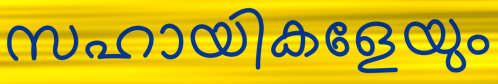
സഹായികളേയും